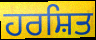
ਹਰਸ਼ਿਤ